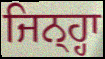
ਜਿਨ੍ਹ੍ਹਾ